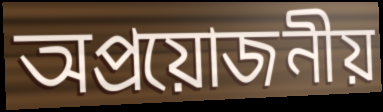
অপ্রয়োজনীয়